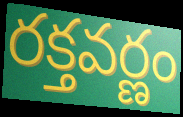
రక్తవర్ణం